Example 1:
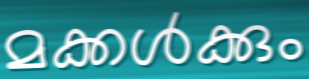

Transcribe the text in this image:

മക്കൾക്കും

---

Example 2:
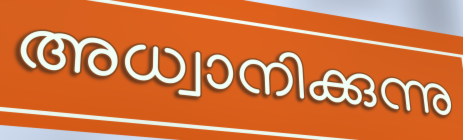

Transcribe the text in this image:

അധ്വാനിക്കുന്നു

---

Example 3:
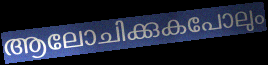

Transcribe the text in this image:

ആലോചിക്കുകപോലും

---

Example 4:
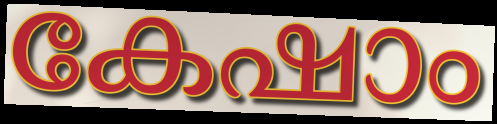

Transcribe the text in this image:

കേഷാം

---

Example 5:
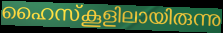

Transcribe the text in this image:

ഹൈസ്‌കൂളിലായിരുന്നു